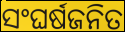
ସଂଘର୍ଷଜନିତ